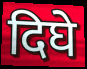
दिघे